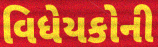
વિધેયકોની